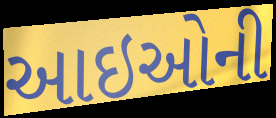
આઇઓની